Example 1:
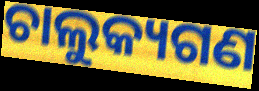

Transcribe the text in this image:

ଚାଲୁକ୍ୟଗଣ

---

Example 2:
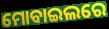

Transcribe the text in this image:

ମୋବାଇଲରେ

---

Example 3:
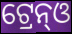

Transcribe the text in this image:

ଟ୍ରେନ୍ଓ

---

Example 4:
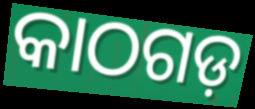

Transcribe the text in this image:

କାଠଗଡ଼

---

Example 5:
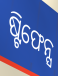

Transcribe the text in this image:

ଷ୍ଟିଫେନ୍ସ